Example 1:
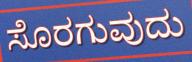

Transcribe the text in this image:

ಸೊರಗುವುದು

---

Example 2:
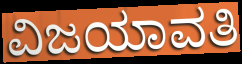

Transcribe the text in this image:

ವಿಜಯಾವತಿ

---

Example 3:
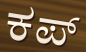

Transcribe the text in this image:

ಕಪ್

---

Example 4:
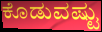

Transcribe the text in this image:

ಕೊಡುವಷ್ಟು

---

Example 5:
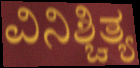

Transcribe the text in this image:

ವಿನಿಶ್ಚಿತ್ಯ